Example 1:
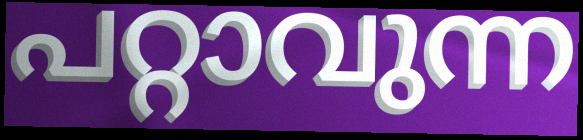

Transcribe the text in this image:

പറ്റാവുന്ന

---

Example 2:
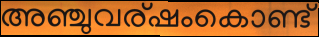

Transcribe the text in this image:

അഞ്ചുവര്ഷംകൊണ്ട്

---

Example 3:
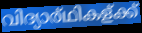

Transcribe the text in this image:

വിദ്യാര്ഥികള്ക്ക്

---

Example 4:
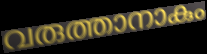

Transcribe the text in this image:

വരുത്താനാകും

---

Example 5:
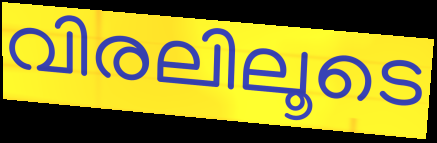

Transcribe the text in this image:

വിരലിലൂടെ